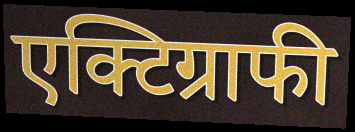
एक्टिग्राफी